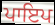
ਪਾਇਪ